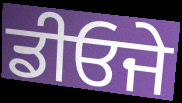
ਡੀਓਜੇ